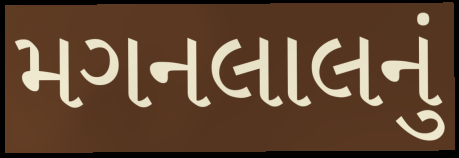
મગનલાલનું